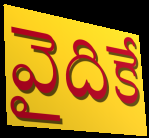
వైదికే